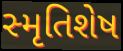
સ્મૃતિશેષ